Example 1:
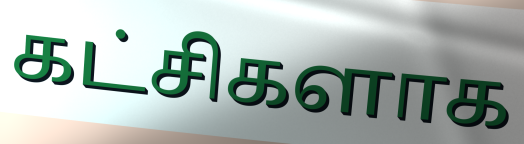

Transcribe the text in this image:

கட்சிகளாக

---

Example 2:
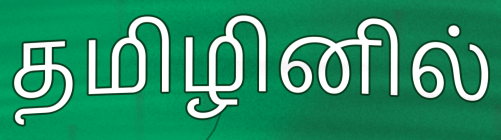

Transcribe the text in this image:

தமிழினில்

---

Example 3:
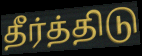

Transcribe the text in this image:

தீர்த்திடு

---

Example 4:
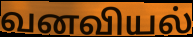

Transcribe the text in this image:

வனவியல்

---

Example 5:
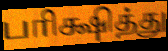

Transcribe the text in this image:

பரிக்ஷித்து